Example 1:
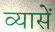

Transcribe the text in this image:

व्यासें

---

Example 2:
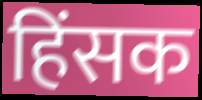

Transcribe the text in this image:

हिंसक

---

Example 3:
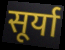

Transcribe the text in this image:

सूर्या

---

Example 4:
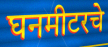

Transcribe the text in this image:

घनमीटरचे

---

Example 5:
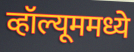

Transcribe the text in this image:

व्हॉल्यूममध्ये